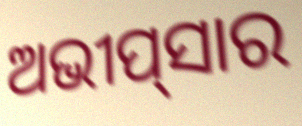
ଅଭୀପ୍‌ସାର